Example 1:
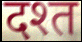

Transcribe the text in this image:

दश्त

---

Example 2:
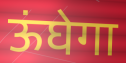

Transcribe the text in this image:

ऊंघेगा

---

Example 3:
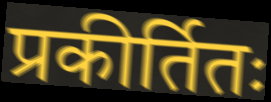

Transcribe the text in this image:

प्रकीर्तितः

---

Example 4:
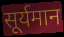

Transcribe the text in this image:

सूर्यमान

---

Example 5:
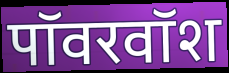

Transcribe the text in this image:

पॉवरवॉश